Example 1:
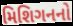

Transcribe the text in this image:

મિશિગનનો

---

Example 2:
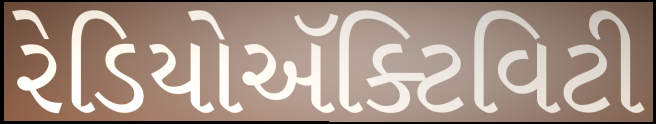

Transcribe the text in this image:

રેડિયોઍક્ટિવિટી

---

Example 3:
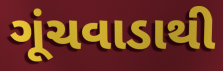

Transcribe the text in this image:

ગૂંચવાડાથી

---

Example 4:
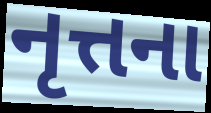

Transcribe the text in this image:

નૃત્તના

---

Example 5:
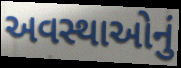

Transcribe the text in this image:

અવસ્થાઓનું